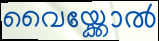
വൈയ്ക്കോൽ